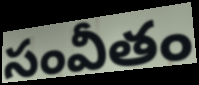
సంవీతం